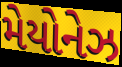
મેયોનેઝ